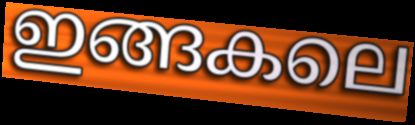
ഇങ്ങകലെ